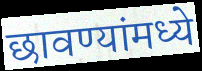
छावण्यांमध्ये